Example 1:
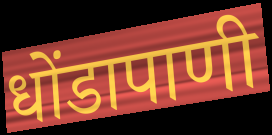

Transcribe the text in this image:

धोंडापाणी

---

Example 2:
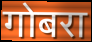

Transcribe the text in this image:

गोबरा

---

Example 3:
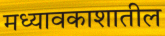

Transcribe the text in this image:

मध्यावकाशातील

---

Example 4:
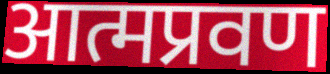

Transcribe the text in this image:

आत्मप्रवण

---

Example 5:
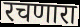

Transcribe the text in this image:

रचणारा